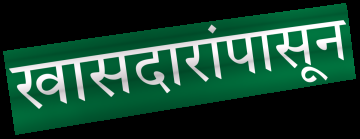
खासदारांपासून